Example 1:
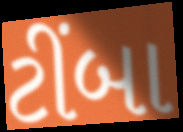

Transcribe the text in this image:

ટીંબા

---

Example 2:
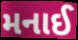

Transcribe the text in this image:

મનાઈ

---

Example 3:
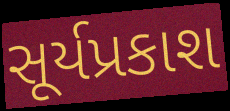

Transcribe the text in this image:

સૂર્યપ્રકાશ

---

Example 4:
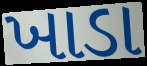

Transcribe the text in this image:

ખાડા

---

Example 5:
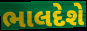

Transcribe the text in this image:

ભાલદેશે